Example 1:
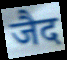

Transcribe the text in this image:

जैद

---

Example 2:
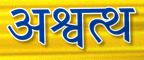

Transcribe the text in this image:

अश्वत्थ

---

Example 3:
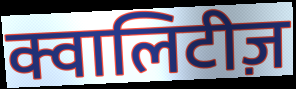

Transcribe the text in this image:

क्वालिटीज़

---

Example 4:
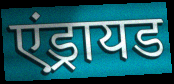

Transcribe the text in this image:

एंड्रायड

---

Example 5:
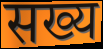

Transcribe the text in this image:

सख्य